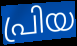
പ്രിയ